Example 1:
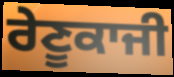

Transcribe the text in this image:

ਰੇਣੂਕਾਜੀ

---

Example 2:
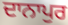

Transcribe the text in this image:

ਦਾਨਾਪੁਰ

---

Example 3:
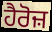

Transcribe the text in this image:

ਹੈਰੋਜ਼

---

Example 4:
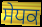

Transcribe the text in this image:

ਸੇਧਕ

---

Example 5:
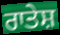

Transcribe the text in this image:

ਰਾਤੇਸ਼